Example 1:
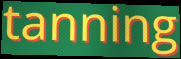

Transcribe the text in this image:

tanning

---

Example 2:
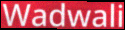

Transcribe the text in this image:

Wadwali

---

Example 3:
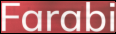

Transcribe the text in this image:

Farabi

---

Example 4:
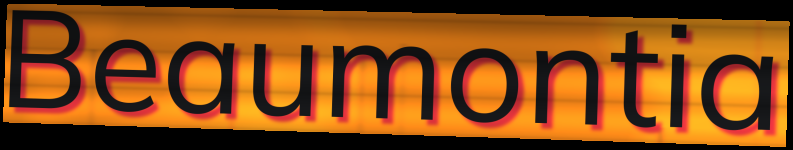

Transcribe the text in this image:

Beaumontia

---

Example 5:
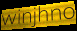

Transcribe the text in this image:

winjhno